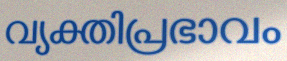
വ്യക്തിപ്രഭാവം